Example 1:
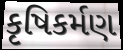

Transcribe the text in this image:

કૃષિકર્મણ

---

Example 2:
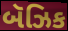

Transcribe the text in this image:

બૅઝિક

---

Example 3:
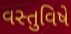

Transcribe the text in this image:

વસ્તુવિષે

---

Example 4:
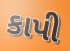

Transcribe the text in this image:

કાપી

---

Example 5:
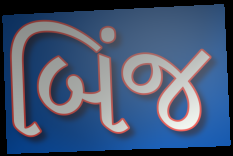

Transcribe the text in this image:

બિંજ